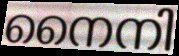
നൈനി